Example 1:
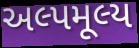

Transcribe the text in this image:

અલ્પમૂલ્ય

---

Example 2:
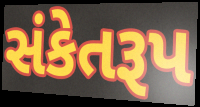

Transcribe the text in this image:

સંકેતરૂપ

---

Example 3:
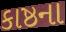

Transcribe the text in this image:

કાષ્ઠના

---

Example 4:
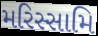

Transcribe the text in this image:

મરિસ્સામિ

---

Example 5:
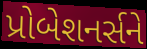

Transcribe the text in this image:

પ્રોબેશનર્સને